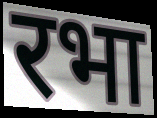
रभा